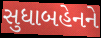
સુધાબહેનને